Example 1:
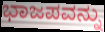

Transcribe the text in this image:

ಭಾಜಪವನ್ನು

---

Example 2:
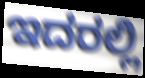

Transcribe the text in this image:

ಇದರಲ್ಲಿ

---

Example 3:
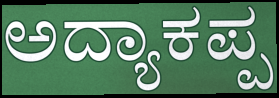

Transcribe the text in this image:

ಅದ್ಯಾಕಪ್ಪ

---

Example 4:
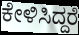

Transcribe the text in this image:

ಕೇಳಿಸಿದ್ದರೆ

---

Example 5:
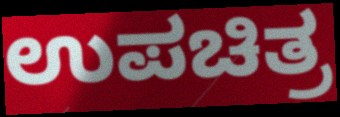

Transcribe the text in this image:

ಉಪಚಿತ್ರ